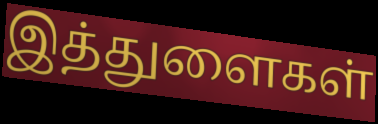
இத்துளைகள்